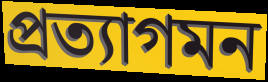
প্রত্যাগমন